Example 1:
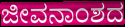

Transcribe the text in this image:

ಜೀವನಾಂಶದ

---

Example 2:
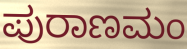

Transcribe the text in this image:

ಪುರಾಣಮಂ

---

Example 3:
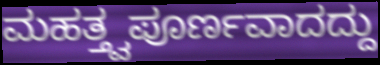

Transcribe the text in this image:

ಮಹತ್ತ್ವಪೂರ್ಣವಾದದ್ದು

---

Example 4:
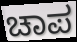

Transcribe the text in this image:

ಚಾಪ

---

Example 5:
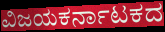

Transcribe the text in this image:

ವಿಜಯಕರ್ನಾಟಕದ